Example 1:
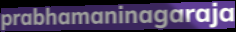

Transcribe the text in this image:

prabhamaninagaraja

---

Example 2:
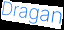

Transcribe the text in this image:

Dragan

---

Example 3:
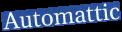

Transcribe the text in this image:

Automattic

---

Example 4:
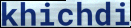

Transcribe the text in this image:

khichdi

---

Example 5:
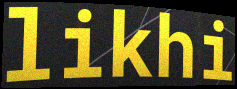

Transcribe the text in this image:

likhi